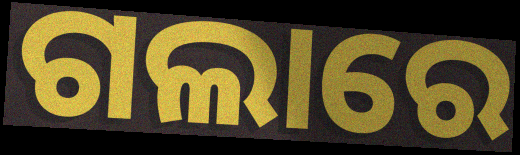
ଗଲାରେ